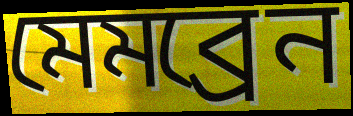
মেমব্রেন